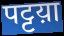
पट्टय़ा